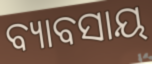
ବ୍ୟାବସାୟ